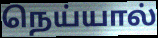
நெய்யால்